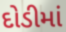
દોડીમાં